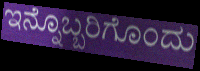
ಇನ್ನೊಬ್ಬರಿಗೊಂದು